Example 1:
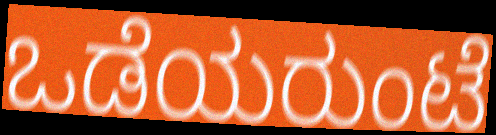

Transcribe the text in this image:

ಒಡೆಯರುಂಟೆ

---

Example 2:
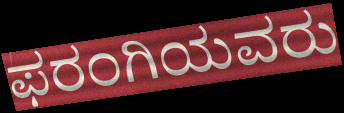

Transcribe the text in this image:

ಫರಂಗಿಯವರು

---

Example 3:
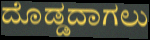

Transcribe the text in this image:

ದೊಡ್ಡದಾಗಲು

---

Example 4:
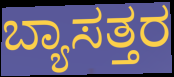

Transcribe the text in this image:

ಬ್ಯಾಸತ್ತರ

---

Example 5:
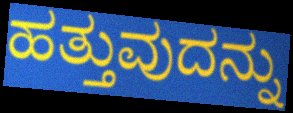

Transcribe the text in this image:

ಹತ್ತುವುದನ್ನು